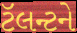
ટૅલન્ટને